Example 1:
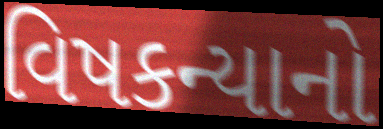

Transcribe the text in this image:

વિષકન્યાનો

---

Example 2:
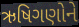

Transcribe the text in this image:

ઋષિગણોને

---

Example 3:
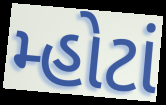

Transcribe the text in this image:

મ્હોટાં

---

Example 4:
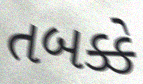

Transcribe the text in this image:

તબક્કે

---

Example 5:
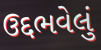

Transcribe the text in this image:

ઉદ્દભવેલું